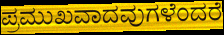
ಪ್ರಮುಖವಾದವುಗಳೆಂದರೆ